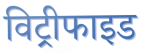
विट्रीफाइड